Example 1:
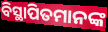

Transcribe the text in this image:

ବିସ୍ଥାପିତମାନଙ୍କ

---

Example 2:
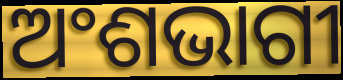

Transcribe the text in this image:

ଅଂଶଭାଗୀ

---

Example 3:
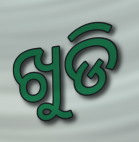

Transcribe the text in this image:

ଖୁଡି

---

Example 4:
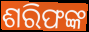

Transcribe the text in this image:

ଶରିଫଙ୍କ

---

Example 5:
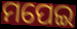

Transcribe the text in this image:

ମପେଇ